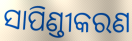
ସାପିଣ୍ଡୀକରଣ